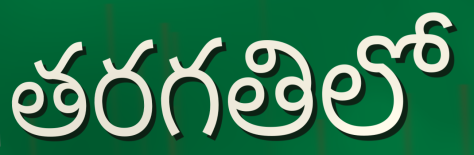
తరగతిలో